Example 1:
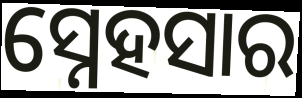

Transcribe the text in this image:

ସ୍ନେହସାର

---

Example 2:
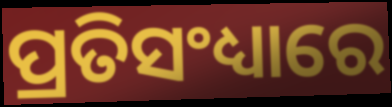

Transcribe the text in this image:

ପ୍ରତିସଂଧ୍ୟାରେ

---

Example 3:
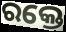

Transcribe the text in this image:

ରକ୍ତେ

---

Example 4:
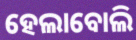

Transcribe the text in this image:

ହେଲାବୋଲି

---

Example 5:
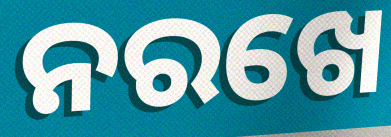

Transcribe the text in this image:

ନରଖେ